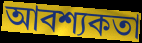
আবশ্যকতা